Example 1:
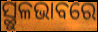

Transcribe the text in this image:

ସ୍ଥୁଳଭାବରେ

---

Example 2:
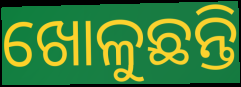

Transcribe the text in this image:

ଖୋଳୁଛନ୍ତି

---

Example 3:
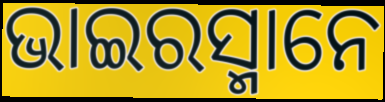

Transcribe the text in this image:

ଭାଇରସ୍ମାନେ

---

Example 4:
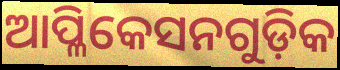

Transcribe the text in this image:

ଆପ୍ଳିକେସନଗୁଡ଼ିକ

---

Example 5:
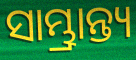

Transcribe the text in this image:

ସାମ୍ଭ୍ରାନ୍ତ୍ୟ